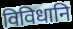
विविधानि